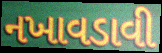
નખાવડાવી